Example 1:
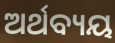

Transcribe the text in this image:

ଅର୍ଥବ୍ୟୟ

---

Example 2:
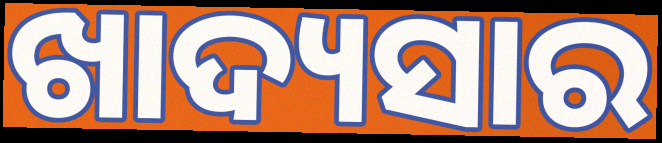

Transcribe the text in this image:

ଖାଦ୍ୟସାର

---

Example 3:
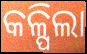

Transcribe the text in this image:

କଳ୍ପିଲା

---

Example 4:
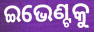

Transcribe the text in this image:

ଇଭେଣ୍ଟକୁ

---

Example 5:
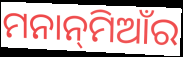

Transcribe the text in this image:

ମନାନ୍‌ମିଆଁର